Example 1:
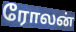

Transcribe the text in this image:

ரோலன்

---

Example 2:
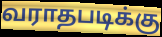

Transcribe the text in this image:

வராதபடிக்கு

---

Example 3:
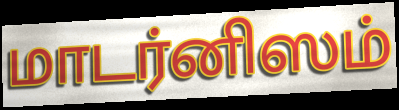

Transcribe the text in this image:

மாடர்னிஸம்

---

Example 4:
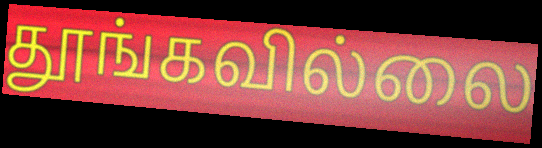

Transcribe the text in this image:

தூங்கவில்லை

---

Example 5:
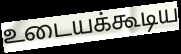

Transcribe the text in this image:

உடையக்கூடிய